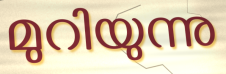
മുറിയുന്നു